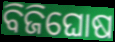
ବିଜିଘୋଷ